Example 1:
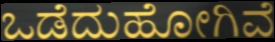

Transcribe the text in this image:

ಒಡೆದುಹೋಗಿವೆ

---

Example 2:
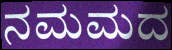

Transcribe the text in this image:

ನಮಮದ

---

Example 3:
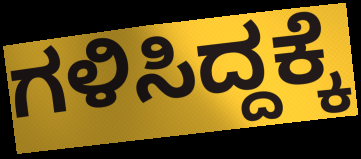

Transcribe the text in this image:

ಗಳಿಸಿದ್ದಕ್ಕೆ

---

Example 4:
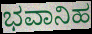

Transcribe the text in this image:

ಭವಾನಿಹ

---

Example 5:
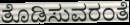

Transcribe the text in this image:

ತೊಡಿಸುವರಂತೆ